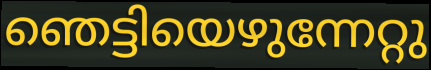
ഞെട്ടിയെഴുന്നേറ്റു